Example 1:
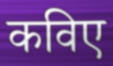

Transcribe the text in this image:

कविए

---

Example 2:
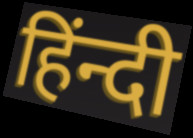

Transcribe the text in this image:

हिंन्दी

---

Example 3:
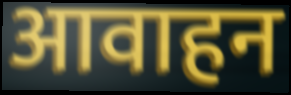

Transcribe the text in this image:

आवाहन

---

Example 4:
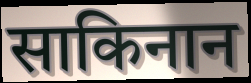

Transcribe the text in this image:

साकिनान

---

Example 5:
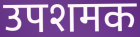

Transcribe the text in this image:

उपशमक